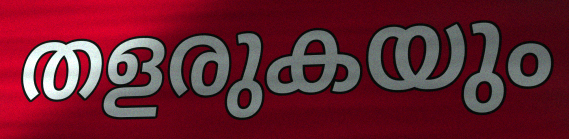
തളരുകയും